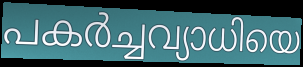
പകർച്ചവ്യാധിയെ